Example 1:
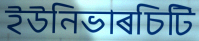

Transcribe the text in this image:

ইউনিভাৰচিটি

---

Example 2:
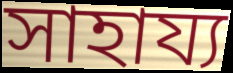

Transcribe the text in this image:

সাহায্য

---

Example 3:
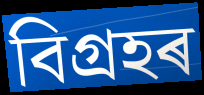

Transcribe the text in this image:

বিগ্ৰহৰ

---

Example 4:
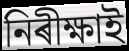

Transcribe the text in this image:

নিৰীক্ষাই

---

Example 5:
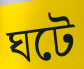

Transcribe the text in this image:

ঘটে